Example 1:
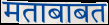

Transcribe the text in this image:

मताबाबत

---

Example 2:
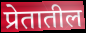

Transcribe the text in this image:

प्रेतातील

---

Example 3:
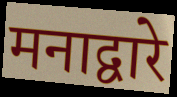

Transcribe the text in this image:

मनाद्वारे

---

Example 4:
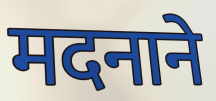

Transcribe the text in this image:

मदनाने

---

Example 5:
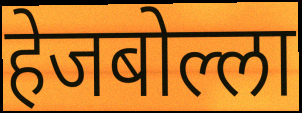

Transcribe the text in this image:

हेजबोल्ला